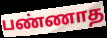
பண்ணாத